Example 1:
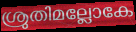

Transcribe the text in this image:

ശ്രുതിമല്ലോകേ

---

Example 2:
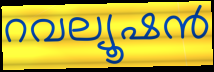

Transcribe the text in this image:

റവല്യൂഷൻ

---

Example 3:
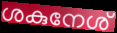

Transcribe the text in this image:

ശകുനേശ്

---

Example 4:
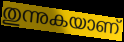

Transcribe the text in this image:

തുന്നുകയാണ്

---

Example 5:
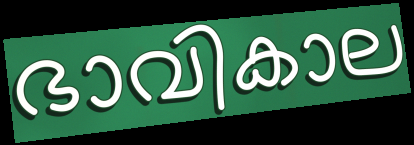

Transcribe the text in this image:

ഭാവികാല